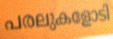
പരലുകളോടി